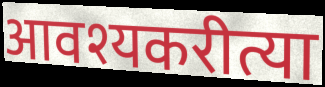
आवश्यकरीत्या